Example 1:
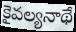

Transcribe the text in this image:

కైవల్యనాథే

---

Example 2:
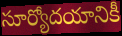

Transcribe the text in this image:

సూర్యోదయానికీ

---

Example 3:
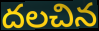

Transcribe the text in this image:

దలచిన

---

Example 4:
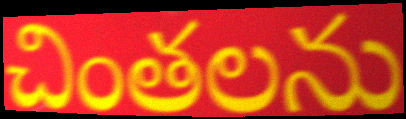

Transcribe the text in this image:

చింతలను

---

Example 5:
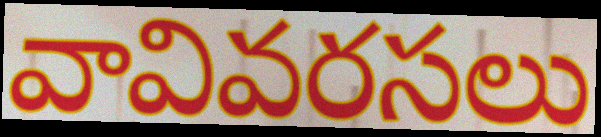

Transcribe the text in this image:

వావివరసలు